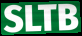
SLTB